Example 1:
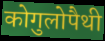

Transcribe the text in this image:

कोगुलोपैथी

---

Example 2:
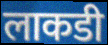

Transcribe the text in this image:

लाकडी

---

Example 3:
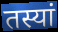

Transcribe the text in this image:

तस्यां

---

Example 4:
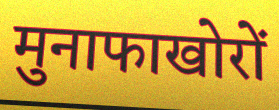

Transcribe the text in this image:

मुनाफाखोरों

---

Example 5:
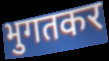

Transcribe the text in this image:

भुगतकर